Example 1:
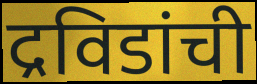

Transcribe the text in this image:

द्रविडांची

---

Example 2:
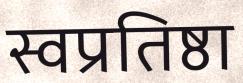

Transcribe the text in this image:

स्वप्रतिष्ठा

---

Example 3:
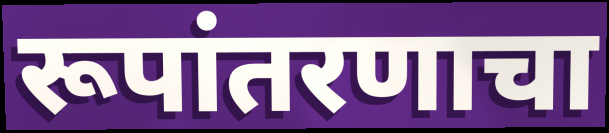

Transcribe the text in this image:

रूपांतरणाचा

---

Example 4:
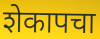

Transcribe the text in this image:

शेकापचा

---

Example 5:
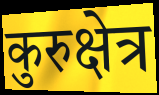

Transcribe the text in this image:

कुरुक्षेत्र